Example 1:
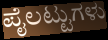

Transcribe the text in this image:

ಪೈಲಟ್ಟುಗಳು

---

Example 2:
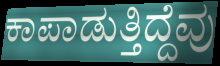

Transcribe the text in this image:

ಕಾಪಾಡುತ್ತಿದ್ದೆವು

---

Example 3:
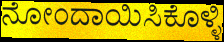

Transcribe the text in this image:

ನೋಂದಾಯಿಸಿಕೊಳ್ಳಿ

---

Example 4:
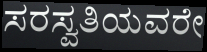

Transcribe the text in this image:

ಸರಸ್ವತಿಯವರೇ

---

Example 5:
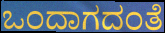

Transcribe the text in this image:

ಒಂದಾಗದಂತೆ